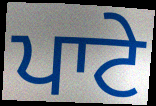
ਪਾਟੇ